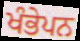
ਖੰਭੇਪਨ